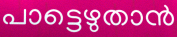
പാട്ടെഴുതാൻ